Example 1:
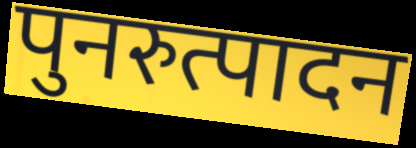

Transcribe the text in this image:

पुनरुत्पादन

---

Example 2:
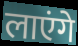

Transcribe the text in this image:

लाएंगे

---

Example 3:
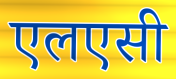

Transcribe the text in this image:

एलएसी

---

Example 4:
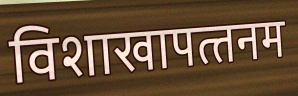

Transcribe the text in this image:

विशाखापत्‍तनम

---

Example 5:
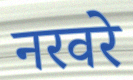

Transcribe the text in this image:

नरवरे